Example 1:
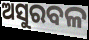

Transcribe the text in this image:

ଅସୁରବଳ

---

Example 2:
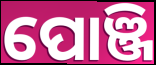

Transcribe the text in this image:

ପୋଞ୍ଜି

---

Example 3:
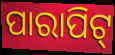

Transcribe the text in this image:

ପାରାପିଟ୍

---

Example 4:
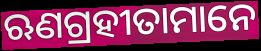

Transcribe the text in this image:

ଋଣଗ୍ରହୀତାମାନେ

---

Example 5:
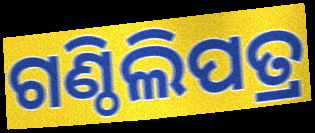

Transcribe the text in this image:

ଗଣ୍ଠିଲିପତ୍ର